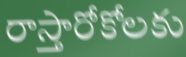
రాస్తారోకోలకు